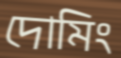
দোমিং